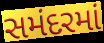
સમંદરમાં